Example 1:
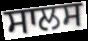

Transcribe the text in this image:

ਸਾਲਸ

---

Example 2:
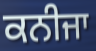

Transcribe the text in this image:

ਕਨੀਜਾ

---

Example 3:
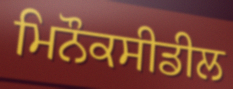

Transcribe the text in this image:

ਮਿਨੌਕਸੀਡੀਲ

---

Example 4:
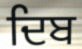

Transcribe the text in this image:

ਦਿਬ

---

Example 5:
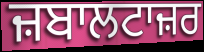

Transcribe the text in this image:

ਜ਼ਬਾਲਟਾਜ਼ਰ